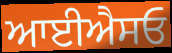
ਆਈਐਸਓ